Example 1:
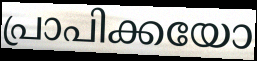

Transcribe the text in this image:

പ്രാപിക്കയോ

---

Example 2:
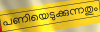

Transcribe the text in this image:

പണിയെടുക്കുന്നതും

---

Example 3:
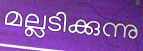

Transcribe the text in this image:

മല്ലടിക്കുന്നു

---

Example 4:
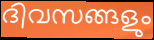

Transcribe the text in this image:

ദിവസങ്ങളും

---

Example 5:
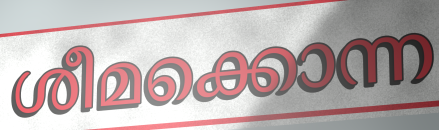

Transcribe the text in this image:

ശീമക്കൊന്ന